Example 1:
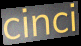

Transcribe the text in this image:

cinci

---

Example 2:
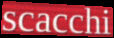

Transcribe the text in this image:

scacchi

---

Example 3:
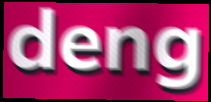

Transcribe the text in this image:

deng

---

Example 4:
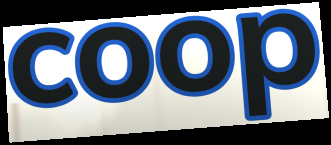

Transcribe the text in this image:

coop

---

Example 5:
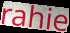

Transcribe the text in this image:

rahie